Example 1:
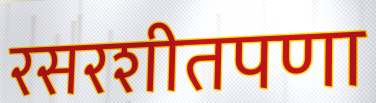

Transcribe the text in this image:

रसरशीतपणा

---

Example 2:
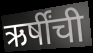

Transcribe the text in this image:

ऋर्षींची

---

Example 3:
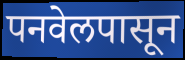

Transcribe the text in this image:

पनवेलपासून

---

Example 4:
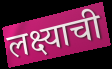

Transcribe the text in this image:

लक्ष्याची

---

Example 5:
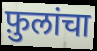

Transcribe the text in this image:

फ़ुलांचा